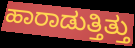
ಹಾರಾಡುತ್ತಿತ್ತು